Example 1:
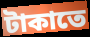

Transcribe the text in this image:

টাকাতে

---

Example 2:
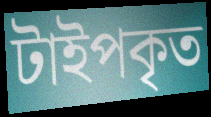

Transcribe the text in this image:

টাইপকৃত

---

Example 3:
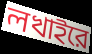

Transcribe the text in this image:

লখাইরে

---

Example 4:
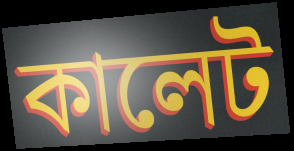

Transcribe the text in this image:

কালেট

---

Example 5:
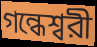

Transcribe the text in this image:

গন্ধেশ্বরী